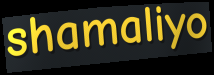
shamaliyo